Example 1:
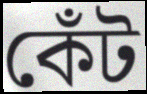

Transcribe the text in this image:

কেঁট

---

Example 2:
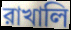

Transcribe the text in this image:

রাখালি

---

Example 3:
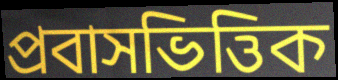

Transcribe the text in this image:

প্রবাসভিত্তিক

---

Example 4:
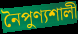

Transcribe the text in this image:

নৈপুণ্যশালী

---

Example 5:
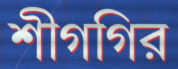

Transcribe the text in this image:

শীগগির